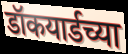
डॉकयार्डच्या